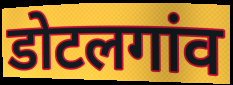
डोटलगांव